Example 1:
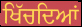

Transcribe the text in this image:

ਖਿੱਚਦਿਆਂ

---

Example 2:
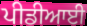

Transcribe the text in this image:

ਪੀਡੀਆਈ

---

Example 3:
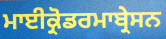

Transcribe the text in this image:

ਮਾਈਕ੍ਰੋਡਰਮਾਬ੍ਰੇਸਨ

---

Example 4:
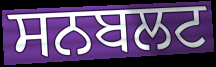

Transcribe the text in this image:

ਸਨਬਲਟ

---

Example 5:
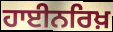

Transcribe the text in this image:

ਹਾਈਨਰਿਖ਼